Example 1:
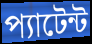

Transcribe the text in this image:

প্যাটেন্ট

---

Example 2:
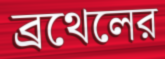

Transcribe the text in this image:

ব্রথেলের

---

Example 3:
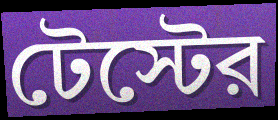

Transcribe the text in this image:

টেস্টের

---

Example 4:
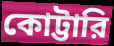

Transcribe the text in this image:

কোট্টারি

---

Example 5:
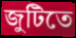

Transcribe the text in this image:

জুটিতে